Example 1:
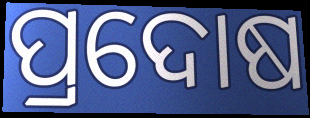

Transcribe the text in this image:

ପ୍ରଦୋଷ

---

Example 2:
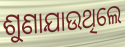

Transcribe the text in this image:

ଶୁଣାଯାଉଥିଲେ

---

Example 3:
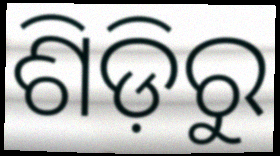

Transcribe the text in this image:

ଶିଡ଼ିରୁ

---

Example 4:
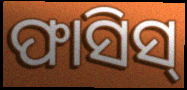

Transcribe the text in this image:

ଫାସିସ୍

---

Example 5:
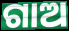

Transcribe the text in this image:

ଗାଅ